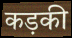
कड़की